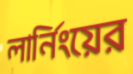
লার্নিংয়ের